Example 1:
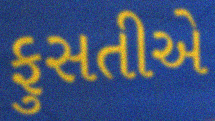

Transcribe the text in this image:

ફુસતીએ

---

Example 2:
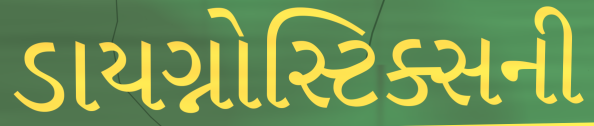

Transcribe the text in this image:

ડાયગ્નોસ્ટિક્સની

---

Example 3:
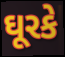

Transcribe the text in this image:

ઘૂરકે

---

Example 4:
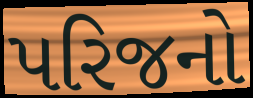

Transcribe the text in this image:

પરિજનો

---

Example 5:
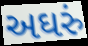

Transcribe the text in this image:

અઘરું